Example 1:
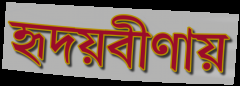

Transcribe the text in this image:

হৃদয়বীণায়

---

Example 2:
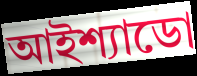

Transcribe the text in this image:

আইশ্যাডো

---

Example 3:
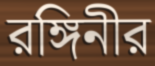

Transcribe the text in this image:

রঙ্গিনীর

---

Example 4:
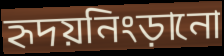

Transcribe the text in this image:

হৃদয়নিংড়ানো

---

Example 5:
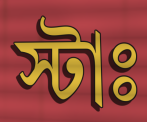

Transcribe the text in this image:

স্টাঃ